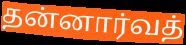
தன்னார்வத்